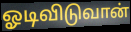
ஓடிவிடுவான்